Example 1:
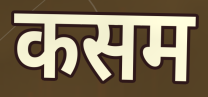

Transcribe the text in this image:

कसम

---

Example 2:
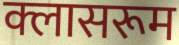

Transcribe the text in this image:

क्‍लासरूम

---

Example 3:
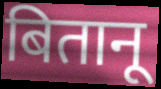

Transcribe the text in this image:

बितानू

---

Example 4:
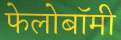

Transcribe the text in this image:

फेलोबॉमी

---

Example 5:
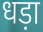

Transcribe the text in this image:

धड़ा